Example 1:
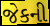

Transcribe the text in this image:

જેકની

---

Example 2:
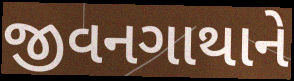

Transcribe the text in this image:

જીવનગાથાને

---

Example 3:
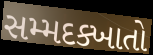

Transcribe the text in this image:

સમ્મદક્ખાતો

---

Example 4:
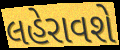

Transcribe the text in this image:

લહેરાવશે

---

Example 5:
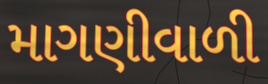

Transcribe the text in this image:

માગણીવાળી